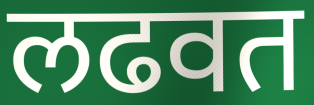
लढवत